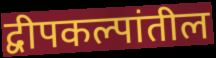
द्वीपकल्पांतील